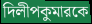
দিলীপকুমারকে